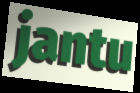
jantu